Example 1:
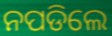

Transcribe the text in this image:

ନପଡିଲେ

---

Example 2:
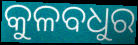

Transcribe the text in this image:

କୁଳବଧୁର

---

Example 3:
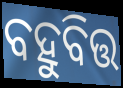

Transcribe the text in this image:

ବହୁବିତ୍ତ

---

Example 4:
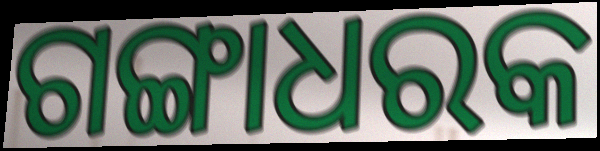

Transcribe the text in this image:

ଗଙ୍ଗାଧରକ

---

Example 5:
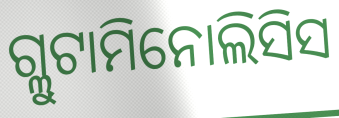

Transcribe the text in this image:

ଗ୍ଲୁଟାମିନୋଲିସିସ